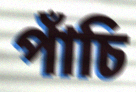
পাঁচি